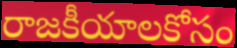
రాజకీయాలకోసం